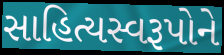
સાહિત્યસ્વરૂપોને